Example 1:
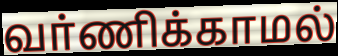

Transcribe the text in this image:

வர்ணிக்காமல்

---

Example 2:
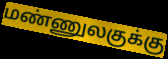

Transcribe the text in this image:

மண்ணுலகுக்கு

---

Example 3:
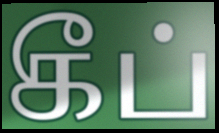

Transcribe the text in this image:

கீப்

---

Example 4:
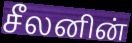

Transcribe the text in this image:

சீலனின்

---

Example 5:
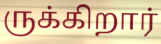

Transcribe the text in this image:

ருக்கிறார்